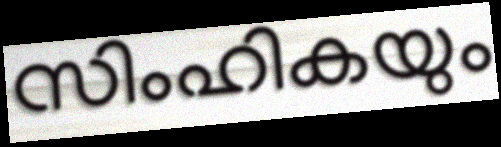
സിംഹികയും